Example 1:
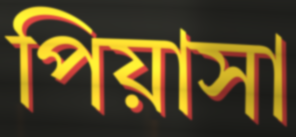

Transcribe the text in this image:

পিয়াসা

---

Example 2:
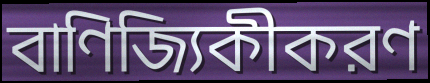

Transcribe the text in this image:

বাণিজ্যিকীকরণ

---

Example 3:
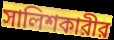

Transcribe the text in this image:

সালিশকারীর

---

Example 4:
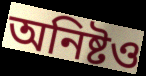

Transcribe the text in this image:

অনিষ্টও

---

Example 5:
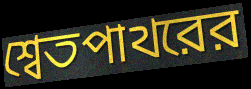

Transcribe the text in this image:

শ্বেতপাথরের